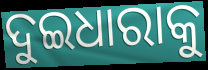
ଦୁଇଧାରାକୁ